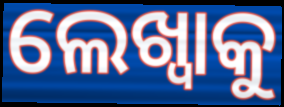
ଲେଖ୍ବାକୁ